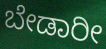
ಬೇಡಾರೀ